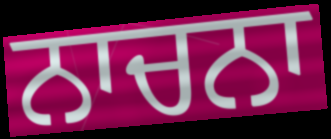
ਨਾਚਨਾ